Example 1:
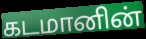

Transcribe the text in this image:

கடமானின்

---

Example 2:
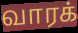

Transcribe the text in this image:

வாரக்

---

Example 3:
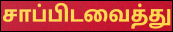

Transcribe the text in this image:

சாப்பிடவைத்து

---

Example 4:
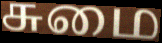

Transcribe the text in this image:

சுமை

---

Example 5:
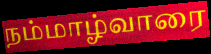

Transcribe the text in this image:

நம்மாழ்வாரை